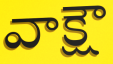
వాక్షౌ